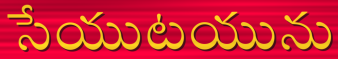
సేయుటయును